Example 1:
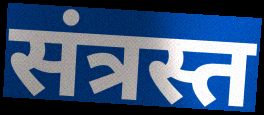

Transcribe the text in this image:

संत्रस्त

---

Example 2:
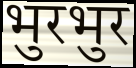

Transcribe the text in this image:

भुरभुर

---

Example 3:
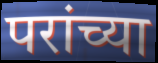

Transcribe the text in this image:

परांच्या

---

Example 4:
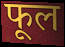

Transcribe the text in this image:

फूल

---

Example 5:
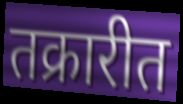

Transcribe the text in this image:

तक्रारीत